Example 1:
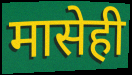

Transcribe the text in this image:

मासेही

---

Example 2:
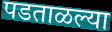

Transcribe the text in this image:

पडताळल्या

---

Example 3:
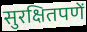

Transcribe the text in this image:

सुरक्षितपणें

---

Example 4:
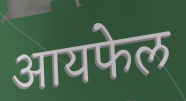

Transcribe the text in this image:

आयफेल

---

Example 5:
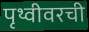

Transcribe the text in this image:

पृथ्वीवरची